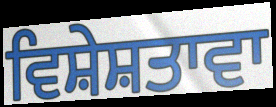
ਵਿਸ਼ੇਸ਼ਤਾਵਾ